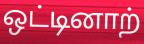
ஒட்டினாற்